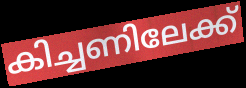
കിച്ചണിലേക്ക്